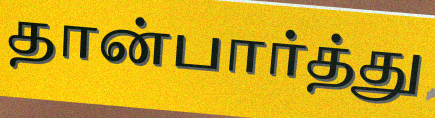
தான்பார்த்து